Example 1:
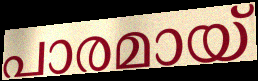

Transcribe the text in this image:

പാരമായ്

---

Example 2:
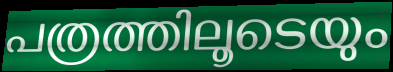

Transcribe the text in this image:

പത്രത്തിലൂടെയും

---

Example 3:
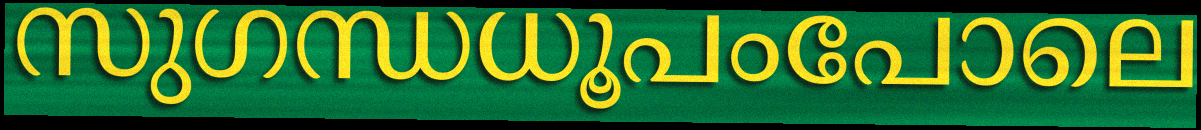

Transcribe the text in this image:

സുഗന്ധധൂപംപോലെ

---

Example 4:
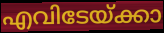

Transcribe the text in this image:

എവിടേയ്ക്കാ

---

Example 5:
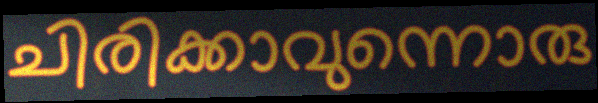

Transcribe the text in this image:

ചിരിക്കാവുന്നൊരു